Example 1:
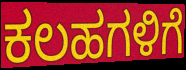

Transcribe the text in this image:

ಕಲಹಗಳಿಗೆ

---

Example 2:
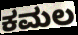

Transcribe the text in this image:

ಕಮಲ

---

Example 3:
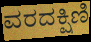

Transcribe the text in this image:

ವರದಕ್ಷಿಣಿ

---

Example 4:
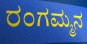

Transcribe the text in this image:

ರಂಗಮ್ಮನ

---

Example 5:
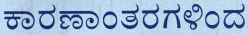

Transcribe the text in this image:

ಕಾರಣಾಂತರಗಳಿಂದ